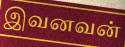
இவனவன்